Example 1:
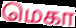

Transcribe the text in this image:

மெகா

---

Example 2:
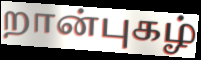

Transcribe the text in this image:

றான்புகழ்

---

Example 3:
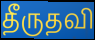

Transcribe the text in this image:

தீருதவி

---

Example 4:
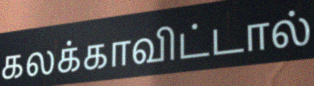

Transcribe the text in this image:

கலக்காவிட்டால்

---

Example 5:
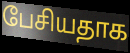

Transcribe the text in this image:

பேசியதாக